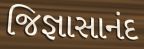
જિજ્ઞાસાનંદ